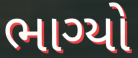
ભાગ્યો